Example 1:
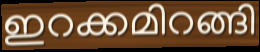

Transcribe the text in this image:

ഇറക്കമിറങ്ങി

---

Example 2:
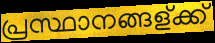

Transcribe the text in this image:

പ്രസ്ഥാനങ്ങള്ക്ക്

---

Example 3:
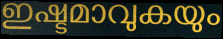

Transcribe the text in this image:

ഇഷ്ടമാവുകയും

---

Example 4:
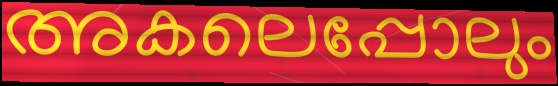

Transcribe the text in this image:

അകലെപ്പോലും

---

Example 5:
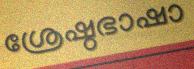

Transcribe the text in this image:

ശ്രേഷ്ഠഭാഷാ